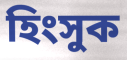
হিংসুক